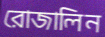
রোজালিন